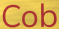
Cob